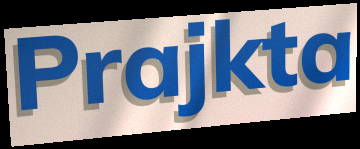
Prajkta